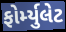
ફોર્મ્યુલેટ